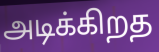
அடிக்கிறத